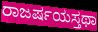
ರಾಜರ್ಷಯಸ್ತಥಾ